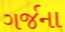
ગર્જના